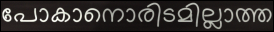
പോകാനൊരിടമില്ലാത്ത